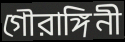
গৌরাঙ্গিনী